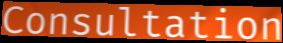
Consultation